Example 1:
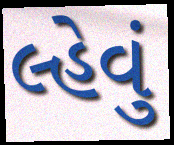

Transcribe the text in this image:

લ્હેવું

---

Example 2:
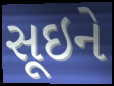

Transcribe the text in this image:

સૂઇને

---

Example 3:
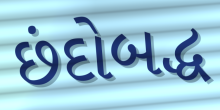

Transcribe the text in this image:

છંદોબદ્ધ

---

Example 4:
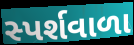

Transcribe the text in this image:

સ્પર્શવાળા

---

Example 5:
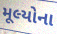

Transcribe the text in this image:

મૂલ્યોના